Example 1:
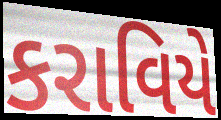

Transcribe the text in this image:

કરાવિયે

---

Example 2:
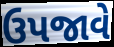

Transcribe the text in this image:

ઉપજાવે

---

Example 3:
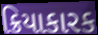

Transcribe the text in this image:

ક્રિયાકારક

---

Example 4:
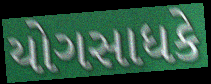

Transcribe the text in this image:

યોગસાધકે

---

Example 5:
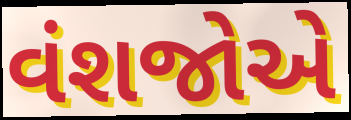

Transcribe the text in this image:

વંશજોએ